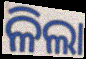
ଳିଲା